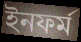
ইনফর্ম